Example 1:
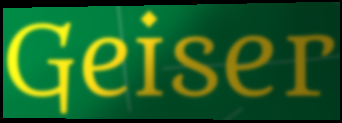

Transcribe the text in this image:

Geiser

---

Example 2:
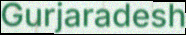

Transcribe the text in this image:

Gurjaradesh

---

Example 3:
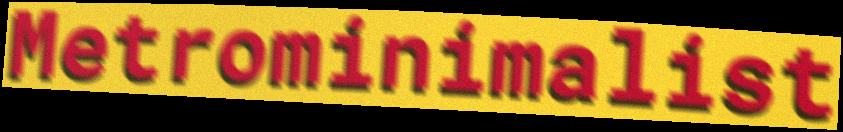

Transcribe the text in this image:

Metrominimalist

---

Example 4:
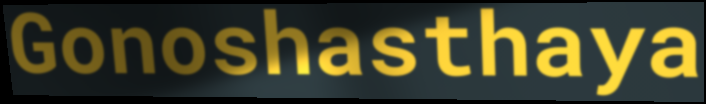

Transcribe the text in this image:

Gonoshasthaya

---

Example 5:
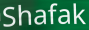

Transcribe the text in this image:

Shafak